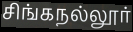
சிங்கநல்லூர்